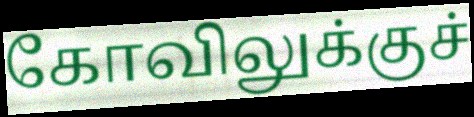
கோவிலுக்குச்